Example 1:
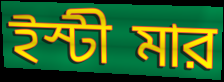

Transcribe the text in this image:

ইস্টীমার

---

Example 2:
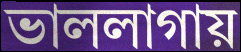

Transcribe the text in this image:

ভাললাগায়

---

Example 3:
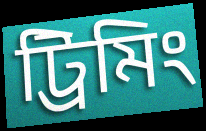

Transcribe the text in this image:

ট্রিমিং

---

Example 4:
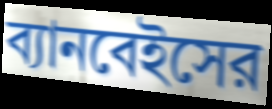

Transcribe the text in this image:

ব্যানবেইসের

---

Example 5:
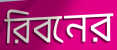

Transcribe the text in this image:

রিবনের